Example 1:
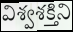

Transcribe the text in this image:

విశ్వశక్తిని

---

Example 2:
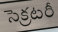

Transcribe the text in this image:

సెక్రటరీ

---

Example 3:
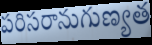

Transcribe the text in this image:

పరిసరానుగుణ్యత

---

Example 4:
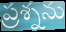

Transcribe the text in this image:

ప్రశ్నను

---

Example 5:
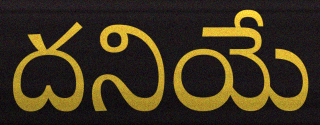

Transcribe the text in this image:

దనియే